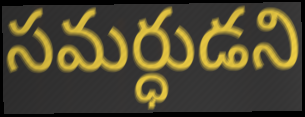
సమర్ధుడని